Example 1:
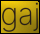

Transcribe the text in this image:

gaj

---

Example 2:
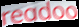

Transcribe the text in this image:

readoo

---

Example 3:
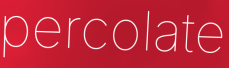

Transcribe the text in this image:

percolate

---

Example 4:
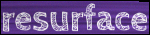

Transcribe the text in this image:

resurface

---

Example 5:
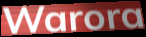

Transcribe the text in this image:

Warora